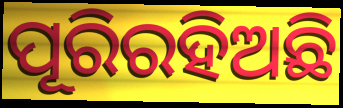
ପୂରିରହିଅଛି